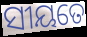
ସୀୟତେ